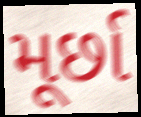
મૂર્છા